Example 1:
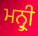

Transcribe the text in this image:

ਮਨ੍ਤ੍ਰੀ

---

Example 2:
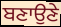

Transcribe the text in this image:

ਬਣਾਉਣੇ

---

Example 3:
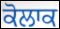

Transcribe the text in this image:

ਕੋਲਾਕ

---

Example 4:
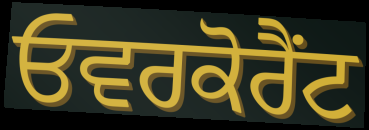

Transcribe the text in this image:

ਓਵਰਕੋਰੈਂਟ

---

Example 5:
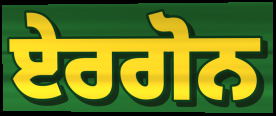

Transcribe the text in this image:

ਏਰਗੋਨ